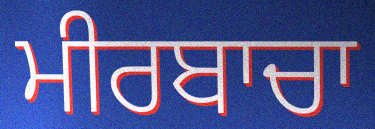
ਮੀਰਬਾਚਾ